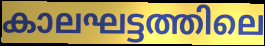
കാലഘട്ടത്തിലെ